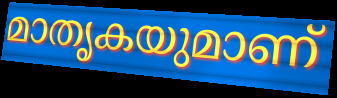
മാതൃകയുമാണ്